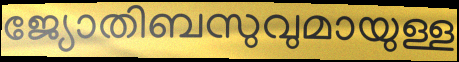
ജ്യോതിബസുവുമായുള്ള